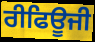
ਰੀਫਿਊਜੀ